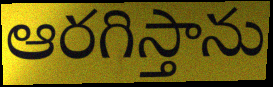
ఆరగిస్తాను